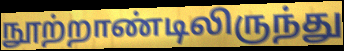
நூற்றாண்டிலிருந்து